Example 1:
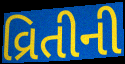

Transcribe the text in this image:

વ્રિતીની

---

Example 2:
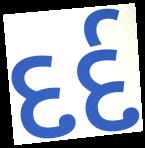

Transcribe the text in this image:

દર્દ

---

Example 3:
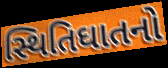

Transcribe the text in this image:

સ્થિતિઘાતનો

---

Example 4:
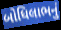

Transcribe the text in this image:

બોધિલાભનું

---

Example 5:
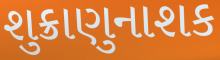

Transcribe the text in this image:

શુક્રાણુનાશક